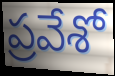
ప్రవేశో